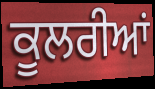
ਕੂਲਰੀਆਂ